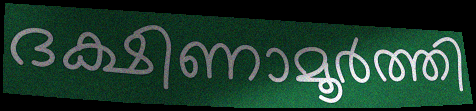
ദക്ഷിണാമൂർത്തി